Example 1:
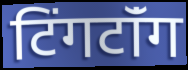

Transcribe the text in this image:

टिंगटॉंग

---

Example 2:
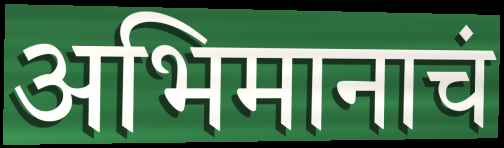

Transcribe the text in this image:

अभिमानाचं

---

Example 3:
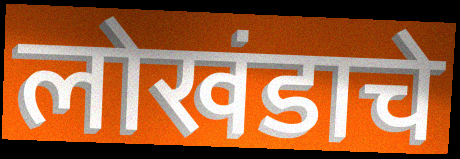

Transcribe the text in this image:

लोखंडाचे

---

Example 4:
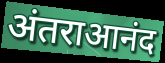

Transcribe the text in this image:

अंतराआनंद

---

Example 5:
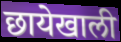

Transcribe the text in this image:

छायेखाली